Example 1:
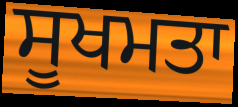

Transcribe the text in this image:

ਸੂਖਮਤਾ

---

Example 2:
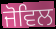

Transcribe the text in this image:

ਜੋਵਿਲ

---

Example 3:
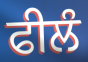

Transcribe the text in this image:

ਫੀਲੰ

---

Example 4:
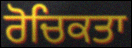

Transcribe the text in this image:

ਰੋਚਿਕਤਾ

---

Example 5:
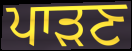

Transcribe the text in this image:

ਪਾੜਣ